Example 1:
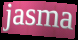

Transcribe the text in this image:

jasma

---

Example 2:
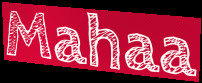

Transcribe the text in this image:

Mahaa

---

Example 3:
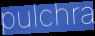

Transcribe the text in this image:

pulchra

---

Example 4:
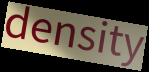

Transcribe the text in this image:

density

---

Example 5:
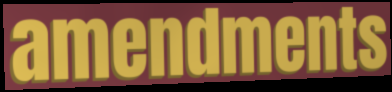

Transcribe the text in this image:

amendments